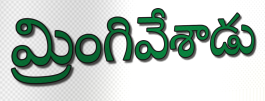
మ్రింగివేశాడు